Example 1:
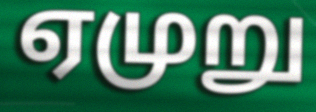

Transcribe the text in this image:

ஏமுறு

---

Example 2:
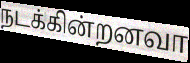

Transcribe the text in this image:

நடக்கின்றனவா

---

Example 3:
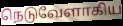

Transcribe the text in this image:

நெடுவேளாகிய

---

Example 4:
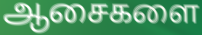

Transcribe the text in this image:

ஆசைகளை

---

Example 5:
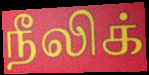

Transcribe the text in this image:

நீலிக்